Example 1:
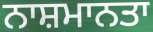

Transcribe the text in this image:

ਨਾਸ਼ਮਾਨਤਾ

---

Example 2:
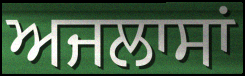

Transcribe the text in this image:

ਅਜਲਾਸਾਂ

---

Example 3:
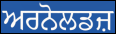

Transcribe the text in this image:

ਅਰਨੋਲਡਜ਼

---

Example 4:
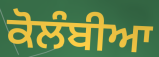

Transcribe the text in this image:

ਕੋਲੰਬੀਆ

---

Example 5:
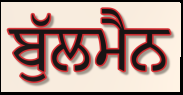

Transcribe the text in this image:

ਬੁੱਲਮੈਨ